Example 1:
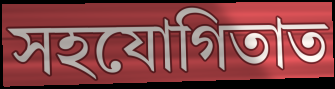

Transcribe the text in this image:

সহযোগিতাত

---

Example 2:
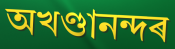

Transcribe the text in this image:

অখণ্ডানন্দৰ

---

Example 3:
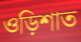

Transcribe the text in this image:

ওড়িশাত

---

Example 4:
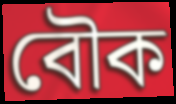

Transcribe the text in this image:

বৌক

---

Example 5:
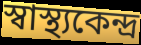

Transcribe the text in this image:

স্বাস্থ্যকেন্দ্ৰ